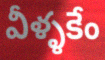
వీళ్ళకేం